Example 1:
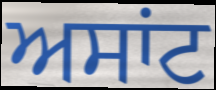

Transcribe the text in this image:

ਅਸਾਂਟ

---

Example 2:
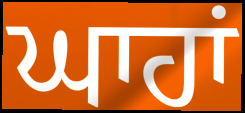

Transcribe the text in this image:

ਘਾਹਾਂ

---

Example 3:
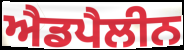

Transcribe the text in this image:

ਐਡਪੈਲੀਨ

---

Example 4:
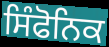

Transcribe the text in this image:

ਸਿੰਫੋਨਿਕ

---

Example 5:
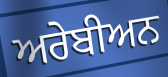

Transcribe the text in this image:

ਅਰੇਬੀਅਨ